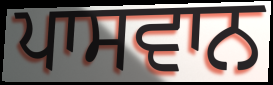
ਪਾਸਵਾਨ